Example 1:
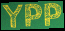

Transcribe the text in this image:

YPP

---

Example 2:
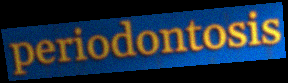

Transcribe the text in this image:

periodontosis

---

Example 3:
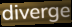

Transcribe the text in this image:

diverge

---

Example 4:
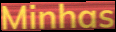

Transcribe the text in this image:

Minhas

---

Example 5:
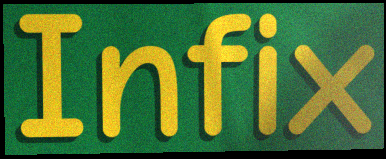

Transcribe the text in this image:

Infix